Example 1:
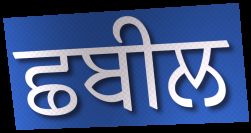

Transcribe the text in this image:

ਛਬੀਲ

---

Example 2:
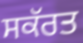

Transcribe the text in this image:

ਸਕੱਰਤ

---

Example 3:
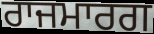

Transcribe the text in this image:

ਰਾਜਮਾਰਗ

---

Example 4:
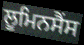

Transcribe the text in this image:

ਲੂਮਿਨਸੈਂਸ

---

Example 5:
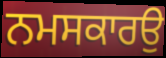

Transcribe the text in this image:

ਨਮਸਕਾਰਉ